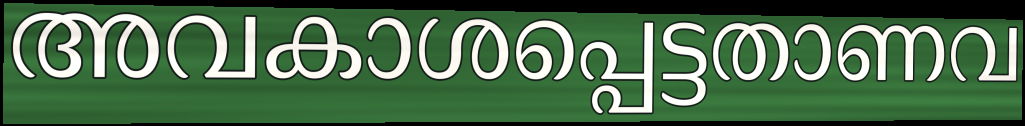
അവകാശപ്പെട്ടതാണവ